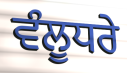
ਵੰਲੂਧਰੇ